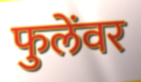
फुलेंवर